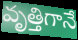
వృత్తిగానే